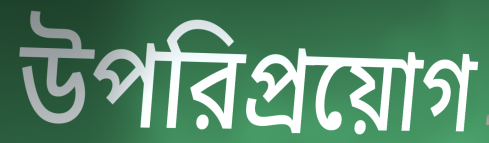
উপরিপ্রয়োগ